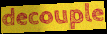
decouple